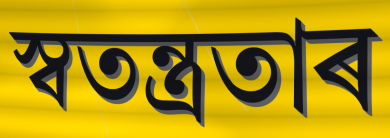
স্বতন্ত্ৰতাৰ